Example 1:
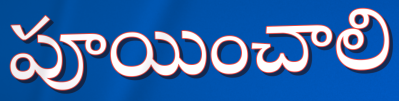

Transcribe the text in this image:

పూయించాలి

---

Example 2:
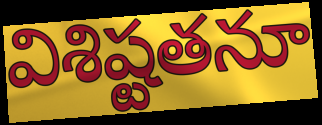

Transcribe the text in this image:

విశిష్టతనూ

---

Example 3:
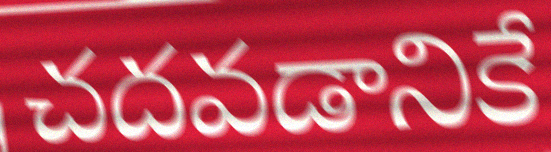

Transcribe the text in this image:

చదవడానికే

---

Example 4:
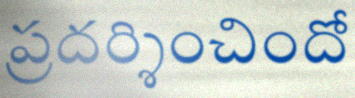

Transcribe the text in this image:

ప్రదర్శించిందో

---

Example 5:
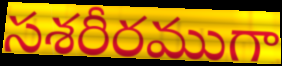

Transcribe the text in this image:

సశరీరముగా